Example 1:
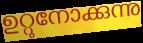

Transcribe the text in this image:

ഉറ്റുനോക്കുന്നു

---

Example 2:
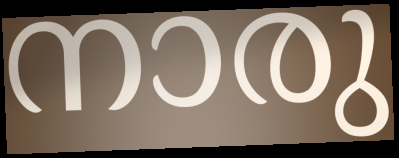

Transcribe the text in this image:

നാരു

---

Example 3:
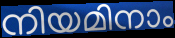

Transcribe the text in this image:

നിയമിനാം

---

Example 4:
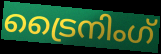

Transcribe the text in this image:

ട്രൈനിംഗ്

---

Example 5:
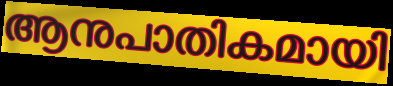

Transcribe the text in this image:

ആനുപാതികമായി